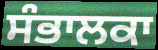
ਸੰਭਾਲਕਾ